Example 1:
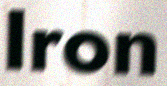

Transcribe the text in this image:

Iron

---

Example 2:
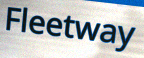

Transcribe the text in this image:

Fleetway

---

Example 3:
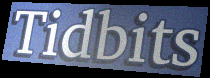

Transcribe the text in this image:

Tidbits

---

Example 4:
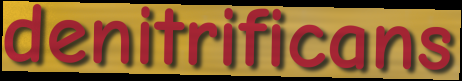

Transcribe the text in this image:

denitrificans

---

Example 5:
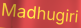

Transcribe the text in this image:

Madhugiri